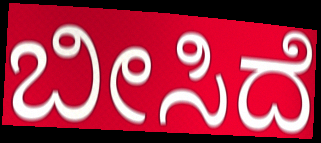
ಬೀಸಿದೆ